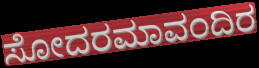
ಸೋದರಮಾವಂದಿರ